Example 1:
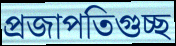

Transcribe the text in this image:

প্রজাপতিগুচ্ছ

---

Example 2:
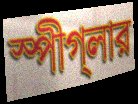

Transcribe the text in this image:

স্পীগ্‌লার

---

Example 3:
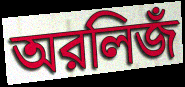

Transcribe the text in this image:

অরলিজঁ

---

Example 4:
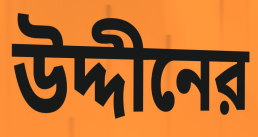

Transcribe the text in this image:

উদ্দীনের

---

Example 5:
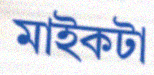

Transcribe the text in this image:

মাইকটা